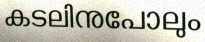
കടലിനുപോലും